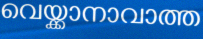
വെയ്ക്കാനാവാത്ത